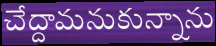
చేద్దామనుకున్నాను